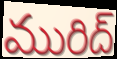
మురిద్